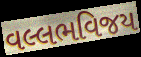
વલ્લભવિજય